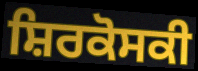
ਸ਼ਿਰਕੋਸਕੀ